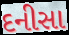
દનીસા